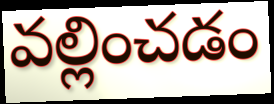
వల్లించడం